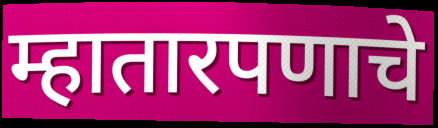
म्हातारपणाचे